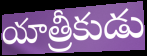
యాత్రీకుడు